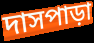
দাসপাড়া